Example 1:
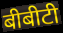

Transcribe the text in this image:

बीबीटी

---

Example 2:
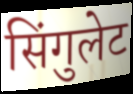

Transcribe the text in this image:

सिंगुलेट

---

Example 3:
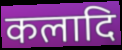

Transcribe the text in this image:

कलादि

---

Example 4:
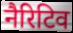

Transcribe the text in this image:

नैरिटिव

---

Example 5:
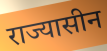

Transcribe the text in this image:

राज्यासीन